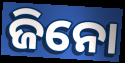
ଜିନୋ